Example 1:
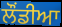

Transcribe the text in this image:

ਲੌਂਡੀਆ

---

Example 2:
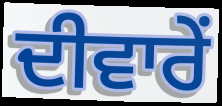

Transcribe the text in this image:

ਦੀਵਾਰੇਂ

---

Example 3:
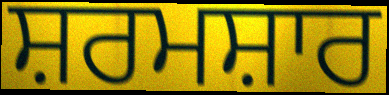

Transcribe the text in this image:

ਸ਼ਰਮਸ਼ਾਰ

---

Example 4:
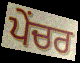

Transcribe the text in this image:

ਪੇਂਚਰ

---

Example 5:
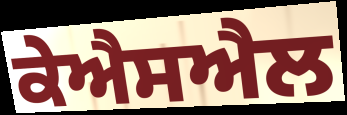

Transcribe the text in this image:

ਕੇਐਸਐਲ